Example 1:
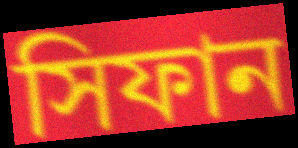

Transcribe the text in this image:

সিফান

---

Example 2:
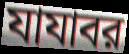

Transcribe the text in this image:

যাযাবর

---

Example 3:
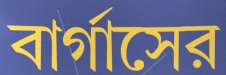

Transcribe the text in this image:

বার্গাসের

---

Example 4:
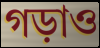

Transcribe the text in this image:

গড়াও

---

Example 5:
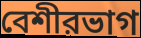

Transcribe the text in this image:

বেশীরভাগ